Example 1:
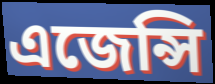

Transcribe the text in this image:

এজেন্সি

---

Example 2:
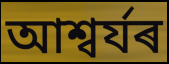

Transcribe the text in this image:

আশ্বৰ্যৰ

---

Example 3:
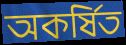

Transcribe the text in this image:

অকৰ্ষিত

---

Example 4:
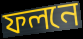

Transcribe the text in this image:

ফলনে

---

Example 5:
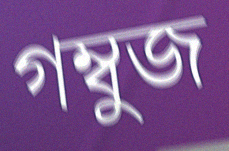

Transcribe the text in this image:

গম্বুজ